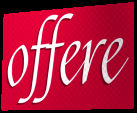
offere